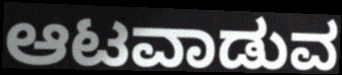
ಆಟವಾಡುವ